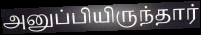
அனுப்பியிருந்தார்